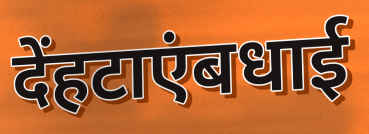
देंहटाएंबधाई